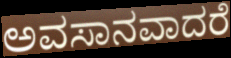
ಅವಸಾನವಾದರೆ